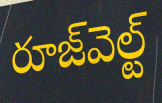
రూజ్‌వెల్ట్